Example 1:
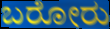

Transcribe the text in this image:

ಬರೋರು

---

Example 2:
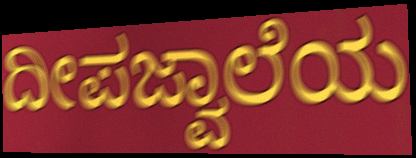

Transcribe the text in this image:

ದೀಪಜ್ವಾಲೆಯ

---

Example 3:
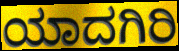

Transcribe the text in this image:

ಯಾದಗಿರಿ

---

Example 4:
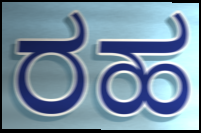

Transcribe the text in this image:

ರಹ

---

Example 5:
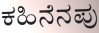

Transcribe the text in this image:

ಕಹಿನೆನಪು